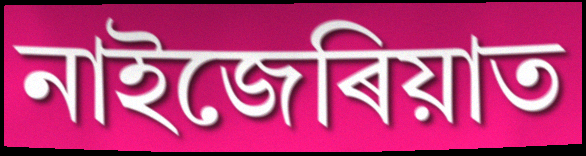
নাইজেৰিয়াত